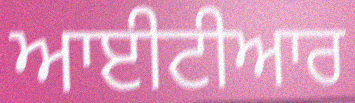
ਆਈਟੀਆਰ